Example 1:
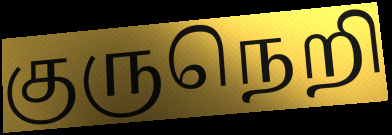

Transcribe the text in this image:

குருநெறி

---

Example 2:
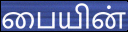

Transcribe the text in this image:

பையின்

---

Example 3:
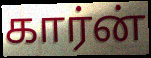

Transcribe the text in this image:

கார்ன்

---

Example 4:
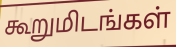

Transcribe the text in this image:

கூறுமிடங்கள்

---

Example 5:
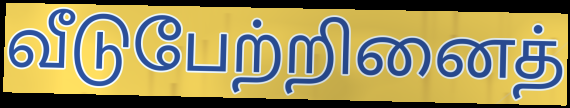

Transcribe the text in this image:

வீடுபேற்றினைத்